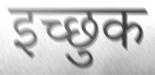
इच्‍छुक